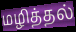
மழித்தல்